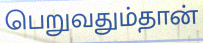
பெறுவதும்தான்